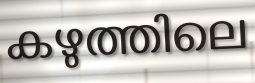
കഴുത്തിലെ